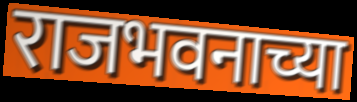
राजभवनाच्या